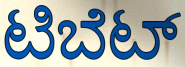
ಟಿಬೆಟ್